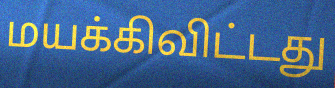
மயக்கிவிட்டது